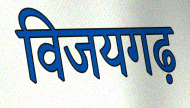
विजयगढ़